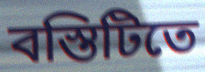
বস্তিটিতে